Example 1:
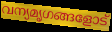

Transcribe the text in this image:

വന്യമൃഗങ്ങളോട്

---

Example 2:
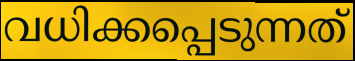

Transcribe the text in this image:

വധിക്കപ്പെടുന്നത്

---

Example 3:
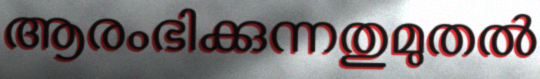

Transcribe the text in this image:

ആരംഭിക്കുന്നതുമുതൽ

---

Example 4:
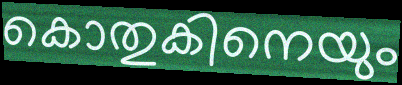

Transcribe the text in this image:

കൊതുകിനെയും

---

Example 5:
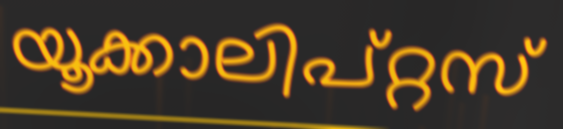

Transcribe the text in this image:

യൂക്കാലിപ്റ്റസ്